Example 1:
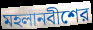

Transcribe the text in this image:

মহলানবীশের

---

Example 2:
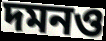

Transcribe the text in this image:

দমনও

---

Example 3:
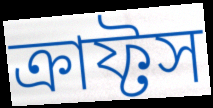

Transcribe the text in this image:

ক্রাফ্টস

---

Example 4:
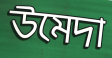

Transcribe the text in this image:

উমেদা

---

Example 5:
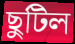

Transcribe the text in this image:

ছুটিল